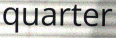
quarter